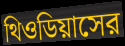
থিওডিয়াসের